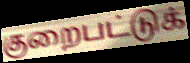
குறைபட்டுக்